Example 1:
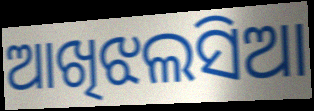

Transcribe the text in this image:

ଆଖିଝଲସିଆ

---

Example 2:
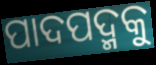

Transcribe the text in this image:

ପାଦପଦ୍ମକୁ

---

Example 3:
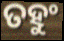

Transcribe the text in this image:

ତହୁଂ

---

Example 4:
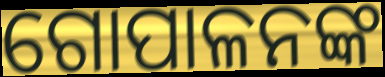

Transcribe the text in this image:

ଗୋପାଳନଙ୍କ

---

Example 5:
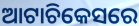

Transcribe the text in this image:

ଆଟାଚିକେସରେ